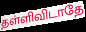
தள்ளிவிடாதே